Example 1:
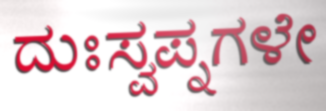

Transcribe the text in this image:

ದುಃಸ್ವಪ್ನಗಳೇ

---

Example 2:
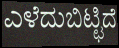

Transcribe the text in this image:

ಎಳೆದುಬಿಟ್ಟಿದೆ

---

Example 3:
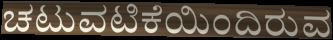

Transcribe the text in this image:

ಚಟುವಟಿಕೆಯಿಂದಿರುವ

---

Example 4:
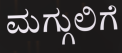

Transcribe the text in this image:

ಮಗ್ಗುಲಿಗೆ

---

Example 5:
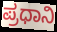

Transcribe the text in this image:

ಪ್ರಧಾನಿ